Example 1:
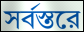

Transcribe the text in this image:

সর্বস্তরে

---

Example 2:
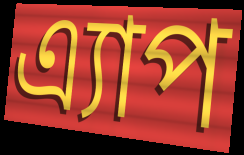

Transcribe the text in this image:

এ্যাপ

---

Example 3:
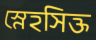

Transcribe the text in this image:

স্নেহসিক্ত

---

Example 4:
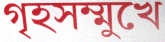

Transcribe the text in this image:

গৃহসম্মুখে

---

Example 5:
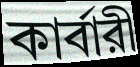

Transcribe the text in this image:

কার্বারী